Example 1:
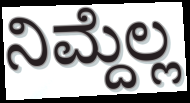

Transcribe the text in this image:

ನಿಮ್ದೆಲ್ಲ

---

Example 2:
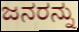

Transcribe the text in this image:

ಜನರನ್ನು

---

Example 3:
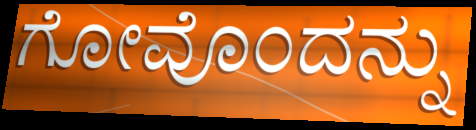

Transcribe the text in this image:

ಗೋವೊಂದನ್ನು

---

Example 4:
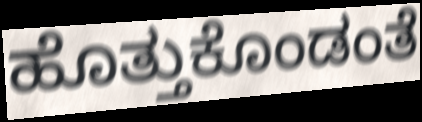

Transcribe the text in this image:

ಹೊತ್ತುಕೊಂಡಂತೆ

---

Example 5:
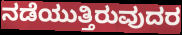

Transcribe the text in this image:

ನಡೆಯುತ್ತಿರುವುದರ